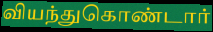
வியந்துகொண்டார்